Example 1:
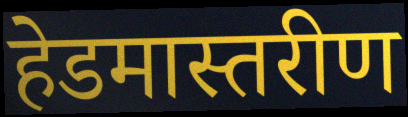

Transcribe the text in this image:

हेडमास्तरीण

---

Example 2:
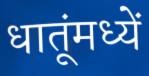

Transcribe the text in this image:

धातूंमध्यें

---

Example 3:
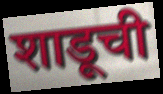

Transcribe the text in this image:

शाडूची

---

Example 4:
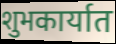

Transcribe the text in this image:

शुभकार्यात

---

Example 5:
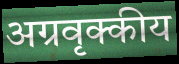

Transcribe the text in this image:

अग्रवृक्कीय